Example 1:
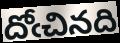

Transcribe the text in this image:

దోఁచినది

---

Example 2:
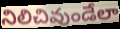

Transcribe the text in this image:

నిలిచివుండేలా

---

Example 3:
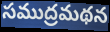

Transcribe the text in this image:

సముద్రమథన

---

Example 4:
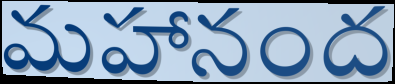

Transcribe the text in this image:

మహానంద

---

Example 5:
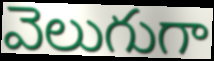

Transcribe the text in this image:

వెలుగుగా